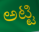
ಅಟ್ಟಿ